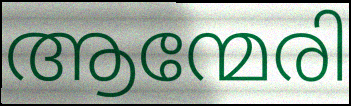
ആന്മേരി